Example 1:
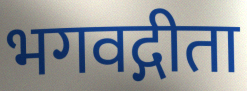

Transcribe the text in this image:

भगवद्गीता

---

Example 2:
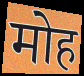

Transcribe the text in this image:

मोह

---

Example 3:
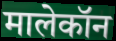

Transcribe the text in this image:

मालेकॉन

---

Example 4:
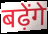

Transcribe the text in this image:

बढ़ेंगे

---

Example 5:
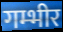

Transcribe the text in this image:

गम्भीर